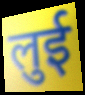
लुई